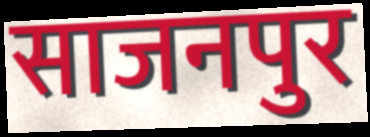
साजनपुर